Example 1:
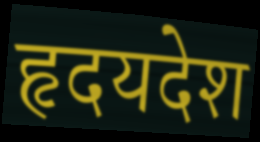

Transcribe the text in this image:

हृदयदेश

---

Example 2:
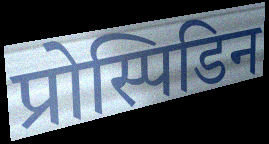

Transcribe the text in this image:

प्रोस्पिडिन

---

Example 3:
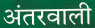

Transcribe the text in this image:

अंतरवाली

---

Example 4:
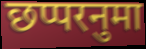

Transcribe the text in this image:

छप्परनुमा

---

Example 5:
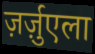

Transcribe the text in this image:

ज़र्ज़ुएला